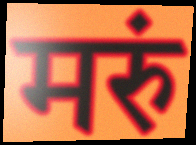
मरुं